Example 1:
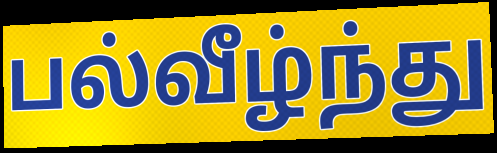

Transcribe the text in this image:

பல்வீழ்ந்து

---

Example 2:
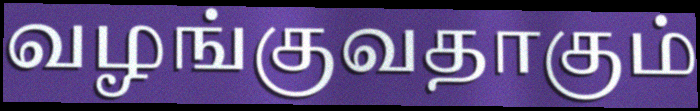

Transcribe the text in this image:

வழங்குவதாகும்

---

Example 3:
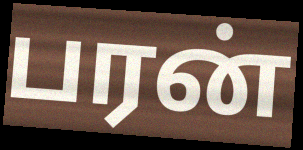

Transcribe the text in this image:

பரன்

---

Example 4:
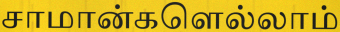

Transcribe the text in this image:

சாமான்களெல்லாம்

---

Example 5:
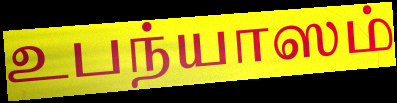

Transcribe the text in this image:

உபந்யாஸம்